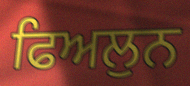
ਫਿਅਲੁਨ